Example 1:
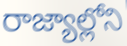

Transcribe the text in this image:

రాజ్యాల్లోని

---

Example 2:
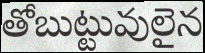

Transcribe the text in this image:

తోబుట్టువులైన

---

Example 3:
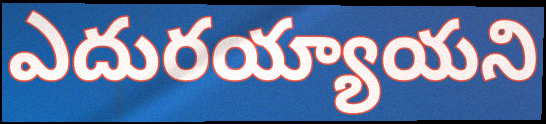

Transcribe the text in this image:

ఎదురయ్యాయని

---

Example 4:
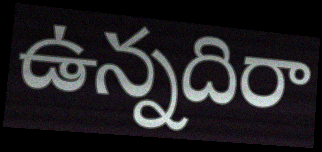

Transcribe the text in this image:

ఉన్నదిరా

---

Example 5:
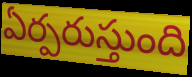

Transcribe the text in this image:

ఏర్పరుస్తుంది